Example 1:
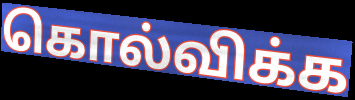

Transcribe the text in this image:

கொல்விக்க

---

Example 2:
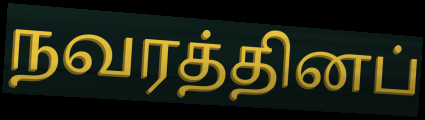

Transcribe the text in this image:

நவரத்தினப்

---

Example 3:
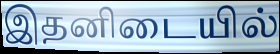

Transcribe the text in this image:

இதனிடையில்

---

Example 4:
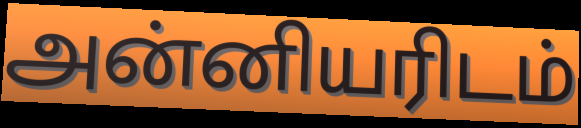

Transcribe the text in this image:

அன்னியரிடம்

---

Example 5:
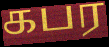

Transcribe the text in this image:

கபர